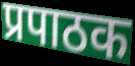
प्रपाठक